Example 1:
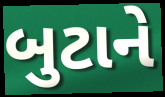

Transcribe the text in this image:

બુટાને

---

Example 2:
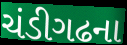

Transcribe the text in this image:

ચંડીગઢના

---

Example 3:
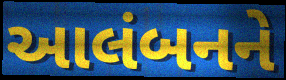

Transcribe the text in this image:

આલંબનને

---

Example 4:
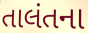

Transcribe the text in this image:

તાલંતના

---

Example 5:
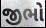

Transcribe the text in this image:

જીભો